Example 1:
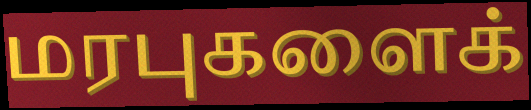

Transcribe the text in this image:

மரபுகளைக்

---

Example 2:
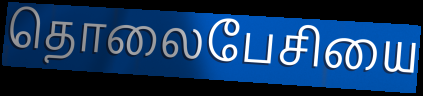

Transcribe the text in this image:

தொலைபேசியை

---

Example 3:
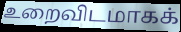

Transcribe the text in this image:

உறைவிடமாகக்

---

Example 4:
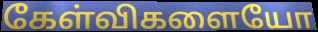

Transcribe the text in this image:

கேள்விகளையோ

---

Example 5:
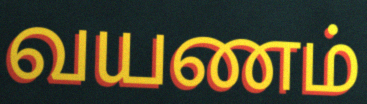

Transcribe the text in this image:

வயணம்